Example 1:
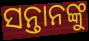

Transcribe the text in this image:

ସନ୍ତାନଙ୍କୁ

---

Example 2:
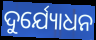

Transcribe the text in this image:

ଦୁର୍ଯ୍ୟୋଧନ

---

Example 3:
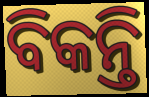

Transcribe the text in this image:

ବିକନ୍ତି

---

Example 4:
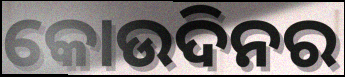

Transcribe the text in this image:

କୋଉଦିନର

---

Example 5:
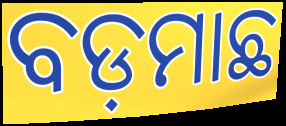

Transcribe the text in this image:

ବଡ଼ମାଛ